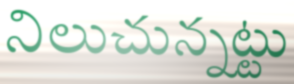
నిలుచున్నట్టు